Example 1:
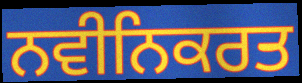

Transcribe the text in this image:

ਨਵੀਨਿਕਰਤ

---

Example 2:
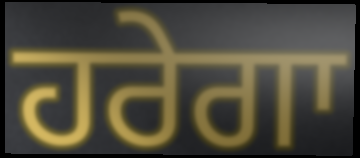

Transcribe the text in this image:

ਹਰੇਗਾ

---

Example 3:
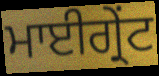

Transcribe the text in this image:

ਮਾਈਗ੍ਰੇਂਟ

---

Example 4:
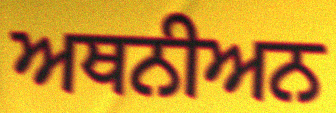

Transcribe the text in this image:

ਅਥਨੀਅਨ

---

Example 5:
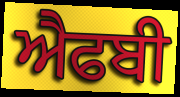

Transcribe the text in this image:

ਐਫਬੀ